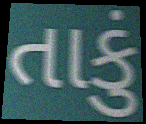
તાકું